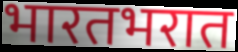
भारतभरात